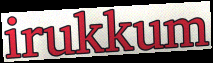
irukkum